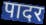
पादर